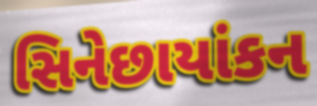
સિનેછાયાંકન